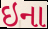
ઇના